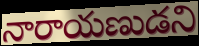
నారాయణుడని